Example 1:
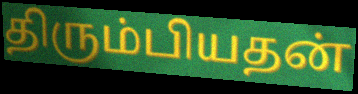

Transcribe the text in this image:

திரும்பியதன்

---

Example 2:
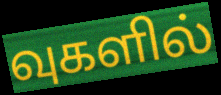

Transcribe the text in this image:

வுகளில்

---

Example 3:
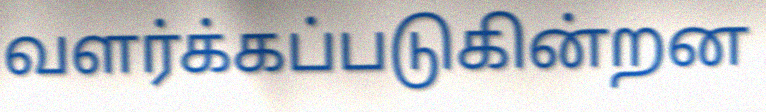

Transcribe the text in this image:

வளர்க்கப்படுகின்றன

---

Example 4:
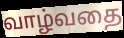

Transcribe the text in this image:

வாழ்வதை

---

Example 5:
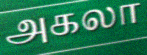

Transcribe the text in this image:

அகலா